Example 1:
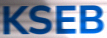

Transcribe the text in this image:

KSEB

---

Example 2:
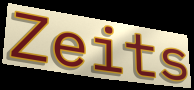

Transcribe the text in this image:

Zeits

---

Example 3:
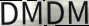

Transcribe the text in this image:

DMDM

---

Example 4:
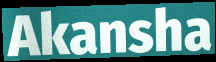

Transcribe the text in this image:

Akansha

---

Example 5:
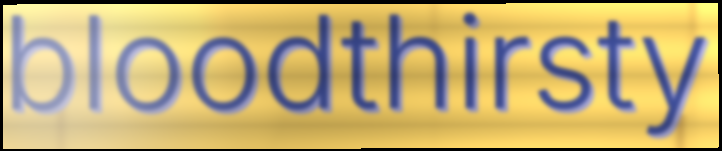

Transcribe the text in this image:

bloodthirsty